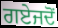
ਗਏਜਦੋਂ